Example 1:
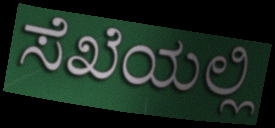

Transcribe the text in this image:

ಸೆಖೆಯಲ್ಲಿ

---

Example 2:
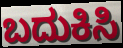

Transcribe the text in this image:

ಬದುಕಿಸಿ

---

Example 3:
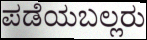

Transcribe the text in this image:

ಪಡೆಯಬಲ್ಲರು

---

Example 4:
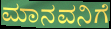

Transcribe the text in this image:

ಮಾನವನಿಗೆ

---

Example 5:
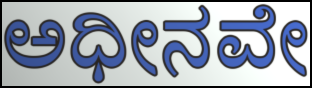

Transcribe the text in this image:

ಅಧೀನವೇ